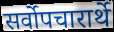
सर्वोपचारार्थे